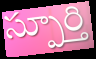
స్పూర్తి